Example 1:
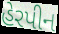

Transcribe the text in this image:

હેરપીન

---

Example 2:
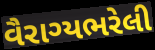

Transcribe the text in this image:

વૈરાગ્યભરેલી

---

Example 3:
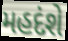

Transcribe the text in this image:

મહદંશે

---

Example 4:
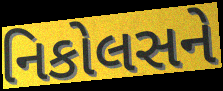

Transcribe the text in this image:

નિકોલસને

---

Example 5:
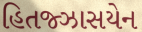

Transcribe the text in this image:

હિતજ્ઝાસયેન